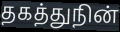
தகத்துநின்